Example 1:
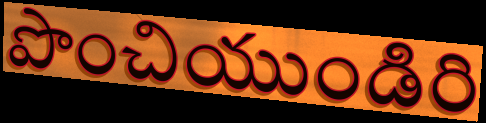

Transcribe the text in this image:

పొంచియుండిరి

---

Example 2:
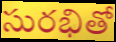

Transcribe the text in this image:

సురభితో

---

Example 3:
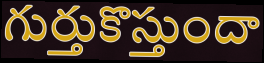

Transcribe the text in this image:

గుర్తుకొస్తుందా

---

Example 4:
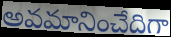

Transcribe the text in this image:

అవమానించేదిగా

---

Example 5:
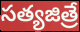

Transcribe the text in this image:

సత్యజిత్రే